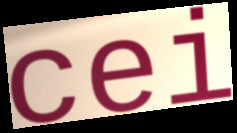
cei